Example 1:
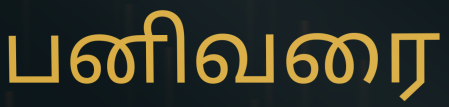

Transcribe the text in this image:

பனிவரை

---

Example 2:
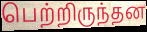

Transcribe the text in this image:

பெற்றிருந்தன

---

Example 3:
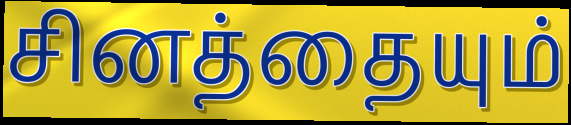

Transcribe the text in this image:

சினத்தையும்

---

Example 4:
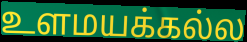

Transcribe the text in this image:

உளமயக்கல்ல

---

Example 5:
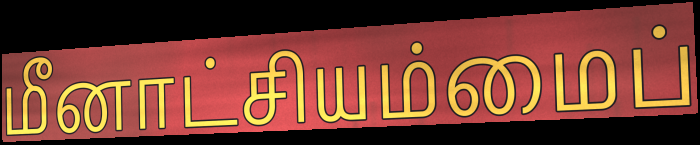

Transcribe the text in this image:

மீனாட்சியம்மைப்